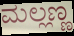
ಮಲ್ಲಣ್ಣ